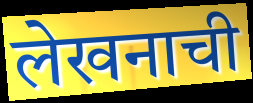
लेखनाची